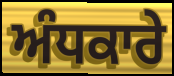
ਅੰਧਕਾਰੇ